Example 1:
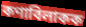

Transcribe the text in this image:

কণাবিলাকক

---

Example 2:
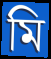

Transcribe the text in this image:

মি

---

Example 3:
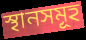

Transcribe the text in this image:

স্থানসমূহ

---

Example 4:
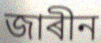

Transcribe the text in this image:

জাৰীন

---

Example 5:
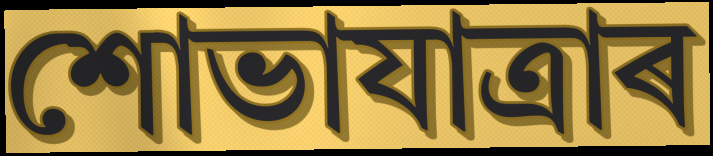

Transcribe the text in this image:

শোভাযাত্ৰাৰ